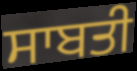
ਸਾਬਤੀ